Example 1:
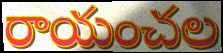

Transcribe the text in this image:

రాయంచల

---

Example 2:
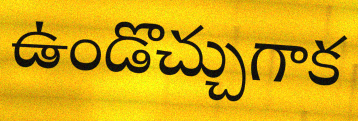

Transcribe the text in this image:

ఉండొచ్చుగాక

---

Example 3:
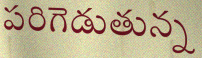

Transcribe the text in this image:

పరిగెడుతున్న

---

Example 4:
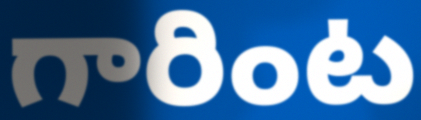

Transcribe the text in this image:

గారింట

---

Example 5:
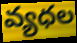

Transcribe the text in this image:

వ్యధల